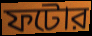
ফটোর